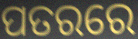
ପତରରେ